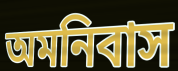
অমনিবাস